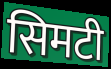
सिमटी